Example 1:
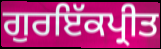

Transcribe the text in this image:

ਗੁਰਇੱਕਪ੍ਰੀਤ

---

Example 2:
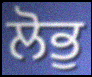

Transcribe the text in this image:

ਲੋਭੁ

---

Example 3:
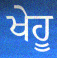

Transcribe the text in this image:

ਖੇਹੂ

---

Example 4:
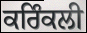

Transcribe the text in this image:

ਕਰਿੰਕਲੀ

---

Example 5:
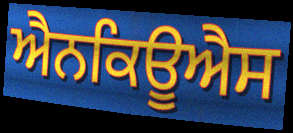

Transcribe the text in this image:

ਐਨਕਿਊਐਸ